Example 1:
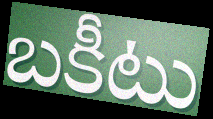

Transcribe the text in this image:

బకీటు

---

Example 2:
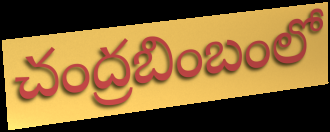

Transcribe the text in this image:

చంద్రబింబంలో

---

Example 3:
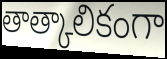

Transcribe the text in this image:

తాత్కాలికంగా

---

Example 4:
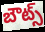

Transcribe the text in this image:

బౌట్స్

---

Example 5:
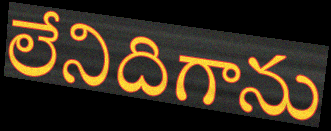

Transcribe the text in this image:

లేనిదిగాను